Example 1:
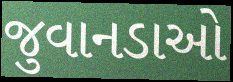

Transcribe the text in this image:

જુવાનડાઓ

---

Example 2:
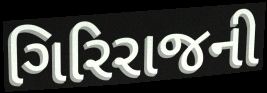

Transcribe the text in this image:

ગિરિરાજની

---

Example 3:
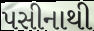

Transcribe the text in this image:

પસીનાથી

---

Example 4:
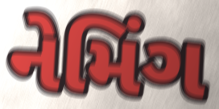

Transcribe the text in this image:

નેમિંગ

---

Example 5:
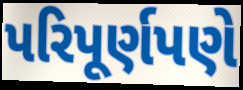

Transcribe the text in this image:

પરિપૂર્ણપણે